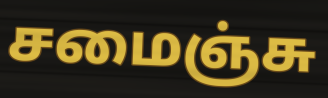
சமைஞ்சு